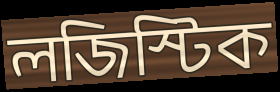
লজিস্টিক